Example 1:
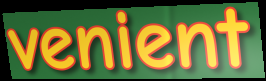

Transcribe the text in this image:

venient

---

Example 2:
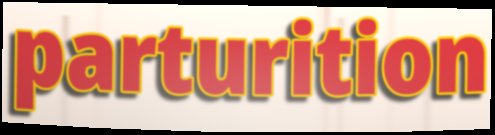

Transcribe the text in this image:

parturition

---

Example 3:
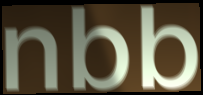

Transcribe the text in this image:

nbb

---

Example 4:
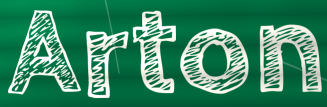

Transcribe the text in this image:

Arton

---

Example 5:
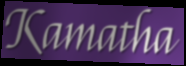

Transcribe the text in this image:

Kamatha